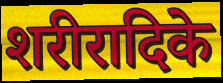
शरीरादिके